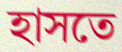
হাসতে